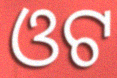
ଓଟ